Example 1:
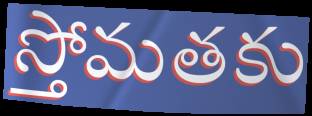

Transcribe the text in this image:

స్తోమతకు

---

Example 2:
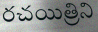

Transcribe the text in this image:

రచయిత్రిని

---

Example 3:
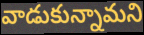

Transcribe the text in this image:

వాడుకున్నామని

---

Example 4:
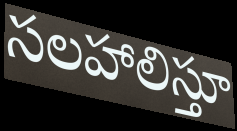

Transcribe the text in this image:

సలహాలిస్తూ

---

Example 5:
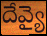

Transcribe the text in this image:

దేవ్యై